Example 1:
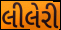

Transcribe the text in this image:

લીલેરી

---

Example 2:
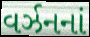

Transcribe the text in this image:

વર્ઝનનાં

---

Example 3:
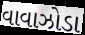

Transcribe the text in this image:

વાવાઝોડા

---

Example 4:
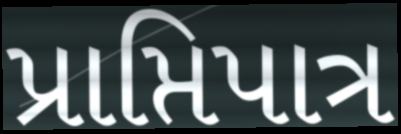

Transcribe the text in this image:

પ્રાપ્તિપાત્ર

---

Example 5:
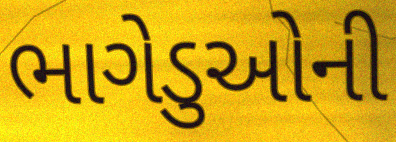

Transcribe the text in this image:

ભાગેડુઓની